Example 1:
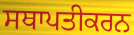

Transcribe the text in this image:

ਸਥਾਪਤੀਕਰਨ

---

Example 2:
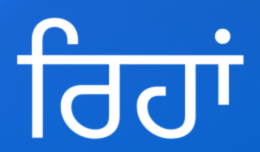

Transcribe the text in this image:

ਰਿਹਾਂ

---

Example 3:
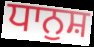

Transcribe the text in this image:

ਧਾਨੁਸ਼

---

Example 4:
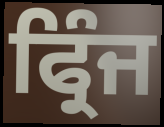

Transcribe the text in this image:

ਫ੍ਰਿੰਜ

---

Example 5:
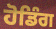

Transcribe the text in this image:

ਹੋਡਿੰਗ